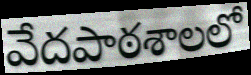
వేదపాఠశాలలో